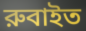
রুবাইত